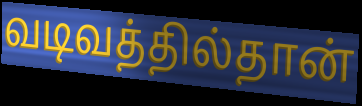
வடிவத்தில்தான்